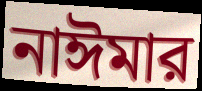
নাঈমার